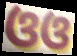
ଓଓ